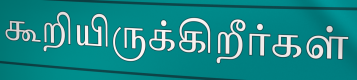
கூறியிருக்கிறீர்கள்